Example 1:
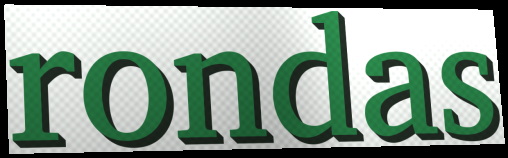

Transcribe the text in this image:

rondas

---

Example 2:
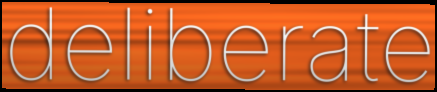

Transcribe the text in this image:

deliberate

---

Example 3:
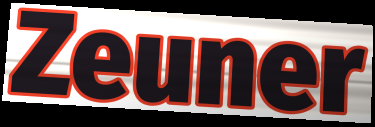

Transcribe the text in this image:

Zeuner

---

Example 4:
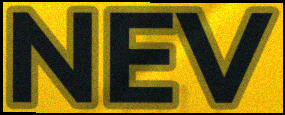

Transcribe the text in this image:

NEV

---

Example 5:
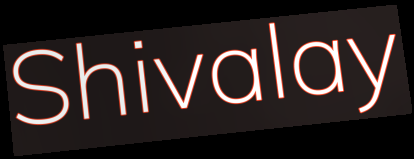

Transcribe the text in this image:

Shivalay